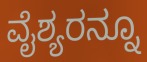
ವೈಶ್ಯರನ್ನೂ